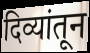
दिव्यांतून